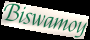
Biswamoy